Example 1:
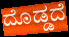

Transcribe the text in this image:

ದೊಡ್ಡದೆ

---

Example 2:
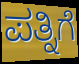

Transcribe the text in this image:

ಪತ್ನಿಗೆ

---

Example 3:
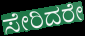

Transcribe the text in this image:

ಸೇರಿದರೇ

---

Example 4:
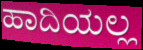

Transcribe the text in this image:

ಹಾದಿಯಲ್ಲ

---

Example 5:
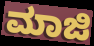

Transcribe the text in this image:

ಮಾಜಿ